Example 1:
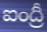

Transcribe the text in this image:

ఐంద్రీ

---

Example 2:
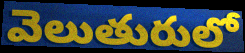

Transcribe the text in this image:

వెలుతురులో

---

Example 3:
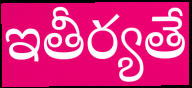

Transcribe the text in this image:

ఇతీర్యతే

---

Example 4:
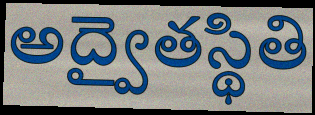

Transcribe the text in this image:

అద్వైతస్థితి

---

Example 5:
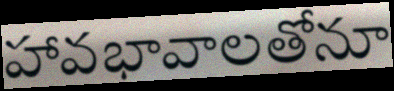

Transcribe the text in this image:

హావభావాలతోనూ